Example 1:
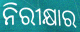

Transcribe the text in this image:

ନିରୀକ୍ଷାର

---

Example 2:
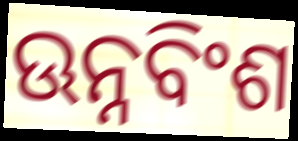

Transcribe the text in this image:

ଊନ୍ନବିଂଶ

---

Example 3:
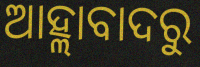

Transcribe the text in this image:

ଆହ୍ଲାବାଦରୁ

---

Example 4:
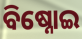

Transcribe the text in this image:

ବିଷ୍ନୋଇ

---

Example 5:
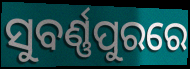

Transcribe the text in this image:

ସୁବର୍ଣ୍ଣପୁରରେ